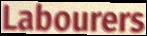
Labourers